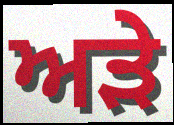
ਅੜੇ